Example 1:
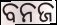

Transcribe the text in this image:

ବନଜ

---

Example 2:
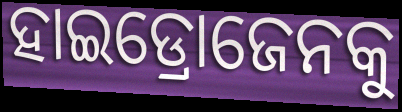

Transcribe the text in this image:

ହାଇଡ୍ରୋଜେନକୁ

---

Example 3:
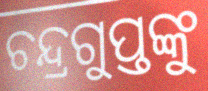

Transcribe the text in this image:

ଚନ୍ଦ୍ରଗୁପ୍ତଙ୍କୁ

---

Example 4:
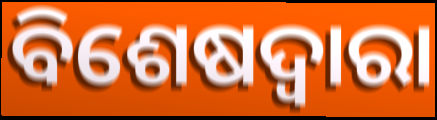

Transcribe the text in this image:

ବିଶେଷଦ୍ଵାରା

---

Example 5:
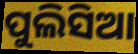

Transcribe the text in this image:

ପୁଲିସିଆ